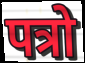
पत्रो